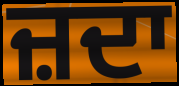
ਜ਼ਦਾ